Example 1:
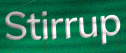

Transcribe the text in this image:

Stirrup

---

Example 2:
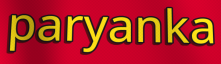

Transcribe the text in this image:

paryanka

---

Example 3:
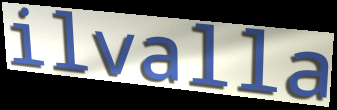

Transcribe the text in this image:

ilvalla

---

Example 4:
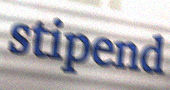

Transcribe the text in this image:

stipend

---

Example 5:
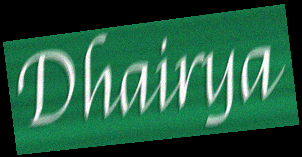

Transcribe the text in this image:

Dhairya